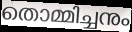
തൊമ്മിച്ചനും